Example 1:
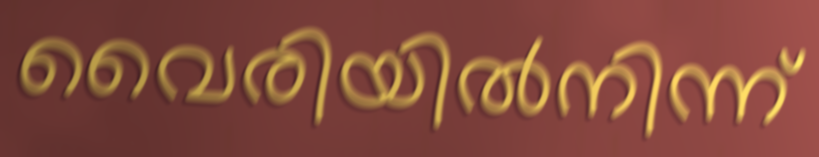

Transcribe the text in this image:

വൈരിയിൽനിന്ന്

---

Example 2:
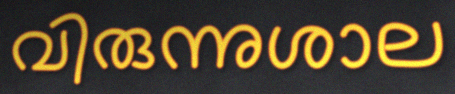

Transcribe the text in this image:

വിരുന്നുശാല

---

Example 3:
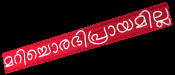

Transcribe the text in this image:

മറിച്ചൊരഭിപ്രായമില്ല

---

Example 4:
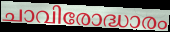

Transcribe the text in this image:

ചാവിരോദ്ധാരം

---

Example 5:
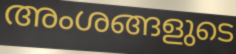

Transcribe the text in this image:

അംശങ്ങളുടെ